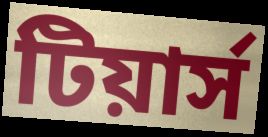
টিয়ার্স